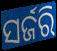
ସର୍ଜରି